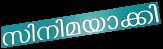
സിനിമയാക്കി